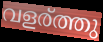
വളര്ത്തു